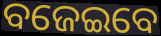
ବଜେଇବେ